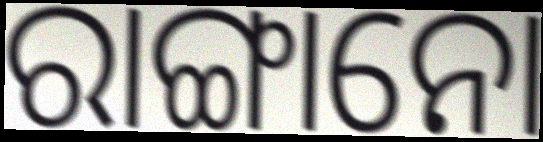
ରାଙ୍ଗାନୋ